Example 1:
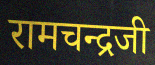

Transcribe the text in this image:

रामचन्द्रजी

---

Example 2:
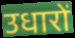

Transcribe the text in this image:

उधारों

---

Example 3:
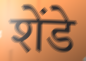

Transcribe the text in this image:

शेंडे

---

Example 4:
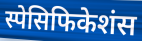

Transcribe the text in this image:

स्पेसिफिकेशंस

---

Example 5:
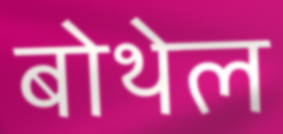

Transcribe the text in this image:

बोथेल